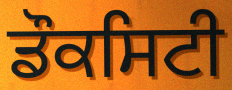
ਡੌਕਸਿਟੀ